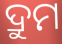
ଦ୍ରୁମ